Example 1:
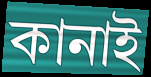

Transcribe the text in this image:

কানাই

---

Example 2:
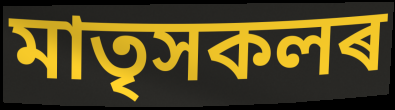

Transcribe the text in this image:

মাতৃসকলৰ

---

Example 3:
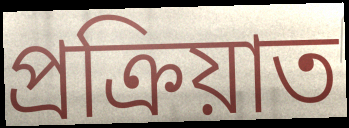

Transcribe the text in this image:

প্ৰক্ৰিয়াত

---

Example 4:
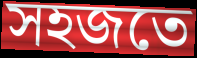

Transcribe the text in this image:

সহজতে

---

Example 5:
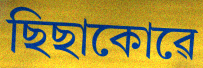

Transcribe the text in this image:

ছিছাকোৱে